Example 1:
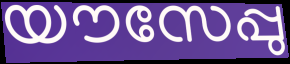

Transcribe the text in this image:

യൗസേപ്പു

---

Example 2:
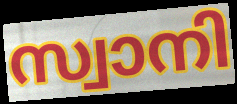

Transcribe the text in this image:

സ്വാനി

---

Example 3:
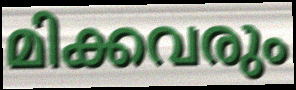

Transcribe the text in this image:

മിക്കവരും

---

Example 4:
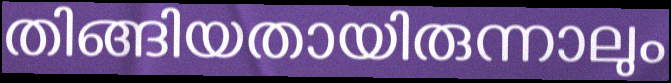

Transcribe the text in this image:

തിങ്ങിയതായിരുന്നാലും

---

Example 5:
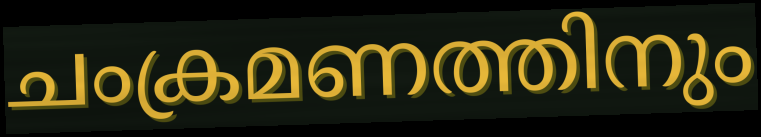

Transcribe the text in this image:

ചംക്രമണത്തിനും